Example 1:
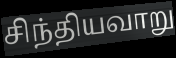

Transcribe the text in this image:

சிந்தியவாறு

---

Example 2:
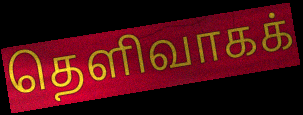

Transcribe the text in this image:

தெளிவாகக்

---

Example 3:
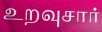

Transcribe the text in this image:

உறவுசார்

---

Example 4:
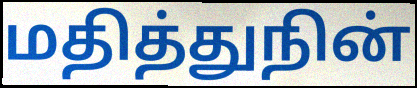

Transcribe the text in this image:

மதித்துநின்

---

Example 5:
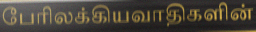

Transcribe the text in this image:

பேரிலக்கியவாதிகளின்